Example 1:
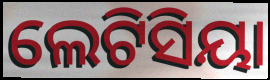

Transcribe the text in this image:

ଲେଟିସିୟା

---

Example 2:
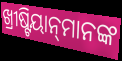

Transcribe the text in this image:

ଖ୍ରୀଷ୍ଟିୟାନ୍‌ମାନଙ୍କ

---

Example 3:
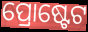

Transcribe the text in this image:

ପ୍ରୋଷ୍ଟେଟ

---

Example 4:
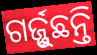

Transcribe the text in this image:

ଗର୍ଜ୍ଜୁଛନ୍ତି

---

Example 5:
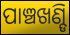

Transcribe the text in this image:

ପାଞ୍ଚଖଣ୍ଡି